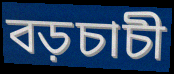
বড়চাচী